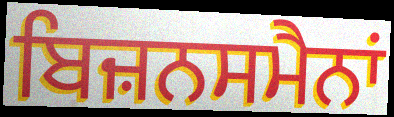
ਬਿਜ਼ਨਸਮੈਨਾਂ